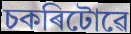
চকৰিটোৱে